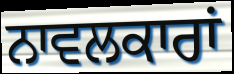
ਨਾਵਲਕਾਰਾਂ